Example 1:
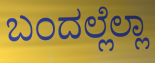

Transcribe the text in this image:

ಬಂದಲ್ಲೆಲ್ಲಾ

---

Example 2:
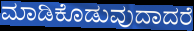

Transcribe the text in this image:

ಮಾಡಿಕೊಡುವುದಾದರೆ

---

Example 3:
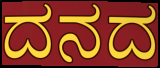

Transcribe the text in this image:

ದನದ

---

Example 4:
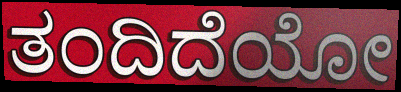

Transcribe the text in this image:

ತಂದಿದೆಯೋ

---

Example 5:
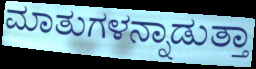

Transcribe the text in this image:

ಮಾತುಗಳನ್ನಾಡುತ್ತಾ